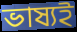
ভাষ্যই